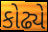
કોઢ્યે